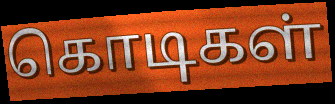
கொடிகள்